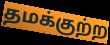
தமக்குற்ற